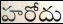
హరోదు